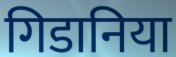
गिडानिया